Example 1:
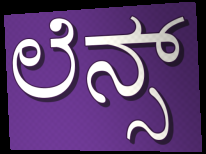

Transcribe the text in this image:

ಲೆನ್ಸ್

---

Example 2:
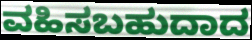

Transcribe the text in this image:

ವಹಿಸಬಹುದಾದ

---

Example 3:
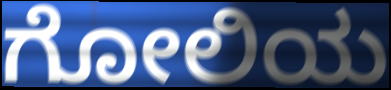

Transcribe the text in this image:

ಗೋಲಿಯ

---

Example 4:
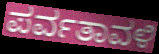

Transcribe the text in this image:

ಪರ್ವತಾವಳಿ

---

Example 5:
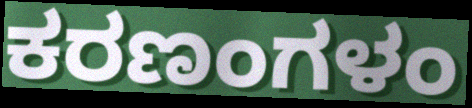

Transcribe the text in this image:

ಕರಣಂಗಳಂ